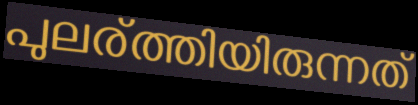
പുലര്ത്തിയിരുന്നത്